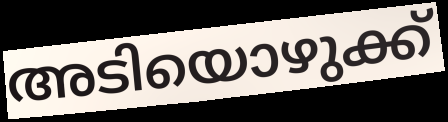
അടിയൊഴുക്ക്